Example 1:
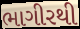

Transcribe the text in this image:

ભાગીરથી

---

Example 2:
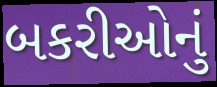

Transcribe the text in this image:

બકરીઓનું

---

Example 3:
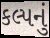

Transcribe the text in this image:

કલ્પનું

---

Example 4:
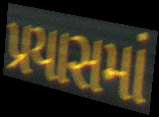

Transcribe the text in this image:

પ્રયાસમાં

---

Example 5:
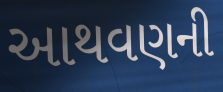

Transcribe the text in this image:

આથવણની